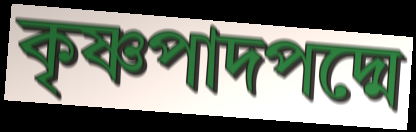
কৃষ্ণপাদপদ্মে